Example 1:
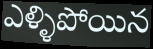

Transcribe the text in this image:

ఎళ్ళిపోయిన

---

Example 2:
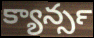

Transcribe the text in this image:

క్యాన్సర్‍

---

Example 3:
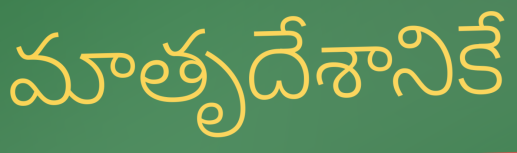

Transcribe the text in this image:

మాతృదేశానికే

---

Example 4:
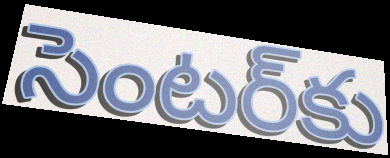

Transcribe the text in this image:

సెంటర్‌కు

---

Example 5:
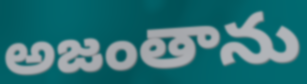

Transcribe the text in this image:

అజంతాను